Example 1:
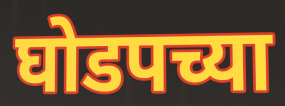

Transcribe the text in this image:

घोडपच्या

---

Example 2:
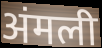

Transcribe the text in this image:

अंमली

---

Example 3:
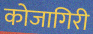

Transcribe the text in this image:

कोजागिरी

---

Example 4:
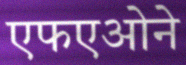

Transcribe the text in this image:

एफएओने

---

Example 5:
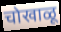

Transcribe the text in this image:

चोखाळू